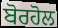
ਬੋਰਹੋਲ